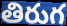
తిరుగ